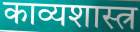
काव्यशास्त्र